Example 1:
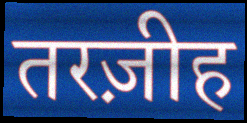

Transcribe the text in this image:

तरज़ीह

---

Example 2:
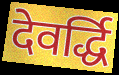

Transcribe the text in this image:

देवर्द्धि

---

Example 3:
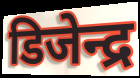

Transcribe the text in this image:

डिजेन्द्र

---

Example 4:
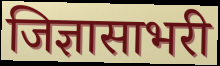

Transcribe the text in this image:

जिज्ञासाभरी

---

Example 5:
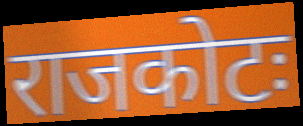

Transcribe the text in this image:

राजकोटः